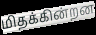
மிதக்கின்றன